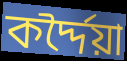
কৰ্দ্দৈয়া